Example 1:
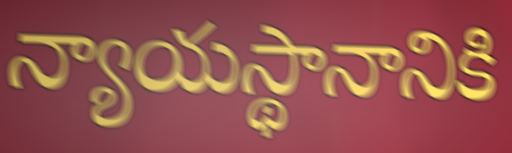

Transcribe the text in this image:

న్యాయస్థానానికి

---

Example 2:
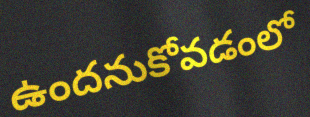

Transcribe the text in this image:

ఉందనుకోవడంలో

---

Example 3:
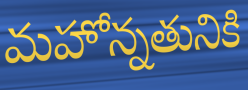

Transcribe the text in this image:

మహోన్నతునికి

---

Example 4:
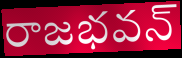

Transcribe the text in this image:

రాజభవన్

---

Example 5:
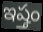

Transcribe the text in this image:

ఇష్తం